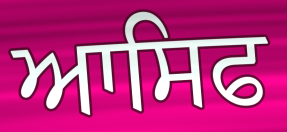
ਆਸਿਫ